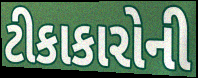
ટીકાકારોની